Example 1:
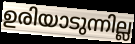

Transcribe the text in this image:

ഉരിയാടുന്നില്ല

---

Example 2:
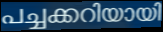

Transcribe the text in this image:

പച്ചക്കറിയായി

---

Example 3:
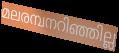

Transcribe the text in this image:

മലരമ്പനറിഞ്ഞില്ല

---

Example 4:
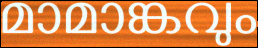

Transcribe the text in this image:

മാമാങ്കവും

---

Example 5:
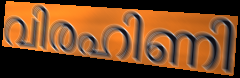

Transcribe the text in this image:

വിരഹിണി